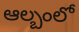
ఆల్బంలో